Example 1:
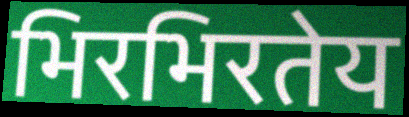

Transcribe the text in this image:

भिरभिरतेय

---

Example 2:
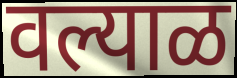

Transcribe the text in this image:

वल्याळ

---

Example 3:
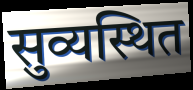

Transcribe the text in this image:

सुव्यस्थित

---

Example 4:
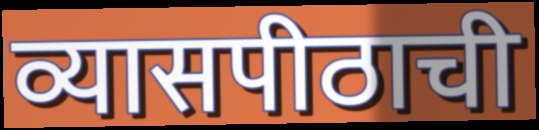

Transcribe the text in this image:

व्यासपीठाची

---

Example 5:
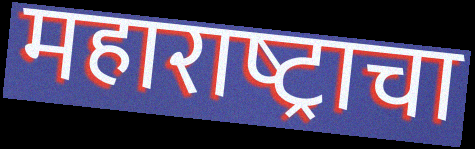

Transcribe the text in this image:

महाराष्ट्राचा